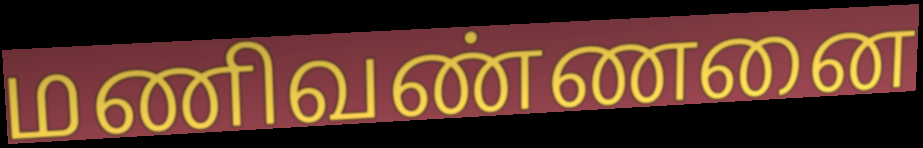
மணிவண்ணனை